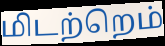
மிடற்றெம்